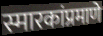
स्मारकांप्रमाणे